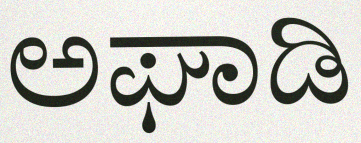
ಅಘಾಡಿ